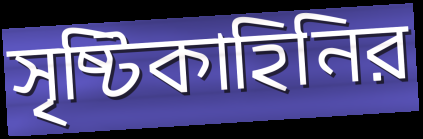
সৃষ্টিকাহিনির